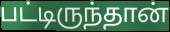
பட்டிருந்தான்